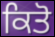
ਕਿਤੋ